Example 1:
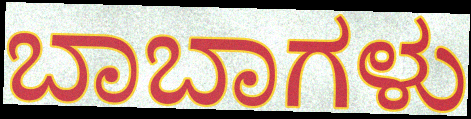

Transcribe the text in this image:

ಬಾಬಾಗಳು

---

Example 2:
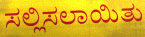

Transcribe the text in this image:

ಸಲ್ಲಿಸಲಾಯಿತು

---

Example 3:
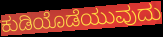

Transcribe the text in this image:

ಕುಡಿಯೊಡೆಯುವುದು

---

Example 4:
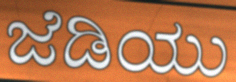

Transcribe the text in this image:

ಜೆಡಿಯು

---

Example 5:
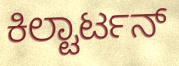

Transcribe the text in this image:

ಕಿಲ್ಟಾರ್ಟನ್